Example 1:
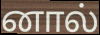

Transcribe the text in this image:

னால்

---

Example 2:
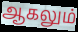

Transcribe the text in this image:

ஆகலும்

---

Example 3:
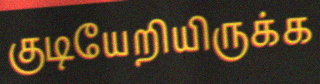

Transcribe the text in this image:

குடியேறியிருக்க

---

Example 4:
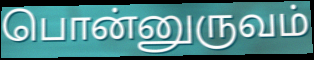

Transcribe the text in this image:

பொன்னுருவம்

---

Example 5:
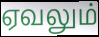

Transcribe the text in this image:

ஏவலும்